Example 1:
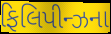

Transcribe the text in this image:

ફિલિપીન્ઝના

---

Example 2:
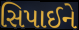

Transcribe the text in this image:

સિપાઈને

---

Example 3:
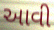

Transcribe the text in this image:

આવી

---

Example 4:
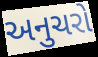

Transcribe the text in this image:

અનુચરો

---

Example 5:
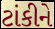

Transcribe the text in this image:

ટાંકીને